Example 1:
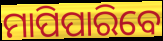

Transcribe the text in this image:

ମାପିପାରିବେ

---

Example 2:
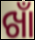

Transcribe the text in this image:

ଖାଁ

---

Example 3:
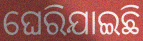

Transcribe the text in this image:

ଘେରିଯାଇଛି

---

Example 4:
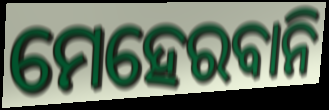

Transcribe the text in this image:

ମେହେରବାନି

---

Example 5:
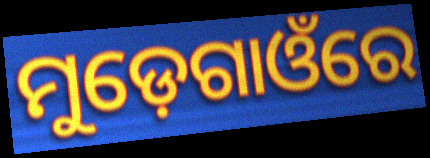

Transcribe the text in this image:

ମୁଡ଼େଗାଓଁରେ